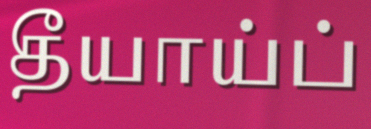
தீயாய்ப்